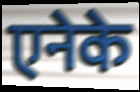
एनेके